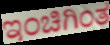
ಇಂಚಿಗಿಂತ